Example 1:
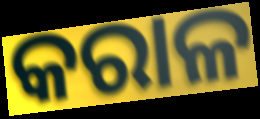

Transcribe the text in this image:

କରାଳ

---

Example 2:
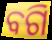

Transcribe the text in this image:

ବଗି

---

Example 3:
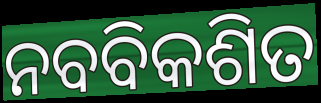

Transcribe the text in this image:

ନବବିକଶିତ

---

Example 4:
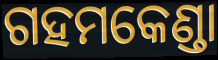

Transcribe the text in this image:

ଗହମକେଣ୍ଡା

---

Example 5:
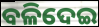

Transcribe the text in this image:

ବଳିଦେଇ